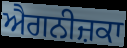
ਐਗਨੀਜ਼ਕਾ